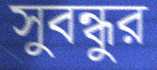
সুবন্ধুর